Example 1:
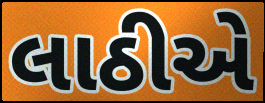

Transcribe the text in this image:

લાઠીએ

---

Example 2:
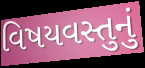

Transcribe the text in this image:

વિષયવસ્તુનું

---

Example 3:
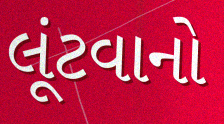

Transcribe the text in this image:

લૂંટવાનો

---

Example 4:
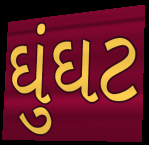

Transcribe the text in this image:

ઘુંઘટ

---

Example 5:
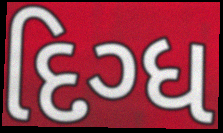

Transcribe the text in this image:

દિગ્ધ